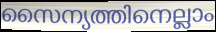
സൈന്യത്തിനെല്ലാം